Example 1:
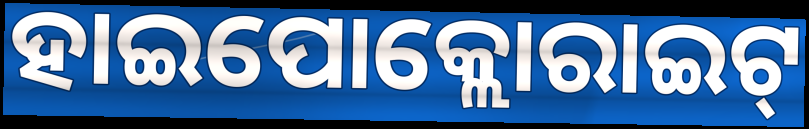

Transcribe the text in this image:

ହାଇପୋକ୍ଲୋରାଇଟ୍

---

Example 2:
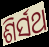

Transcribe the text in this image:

ଶିର୍ସଥ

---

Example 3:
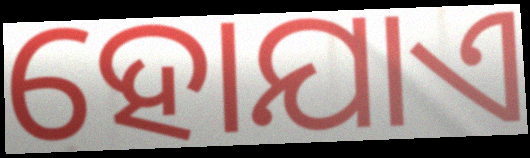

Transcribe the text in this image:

ହୋଯାଏ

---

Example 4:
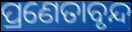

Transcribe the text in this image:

ପ୍ରଣେତାବୃନ୍ଦ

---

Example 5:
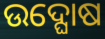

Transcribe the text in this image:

ଉଦ୍ଘୋଷ